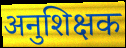
अनुशिक्षक